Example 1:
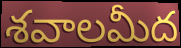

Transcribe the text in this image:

శవాలమీద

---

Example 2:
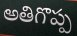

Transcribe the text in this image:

అతిగొప్ప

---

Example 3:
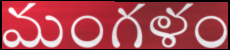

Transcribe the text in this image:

మంగళం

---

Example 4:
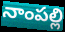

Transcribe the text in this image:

నాంపల్లి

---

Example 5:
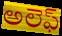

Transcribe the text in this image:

అలెఫ్